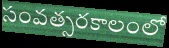
సంవత్సరకాలంలో